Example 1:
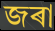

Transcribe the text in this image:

জৰা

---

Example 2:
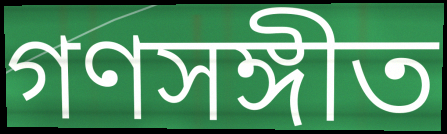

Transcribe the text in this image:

গণসঙ্গীত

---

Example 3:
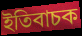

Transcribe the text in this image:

ইতিবাচক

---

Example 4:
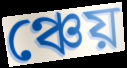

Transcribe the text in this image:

ঞ্চেয়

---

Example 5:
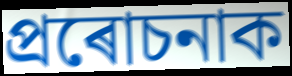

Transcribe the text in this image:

প্ৰৰোচনাক